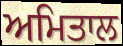
ਅਮਿਤਾਲ